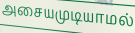
அசையமுடியாமல்